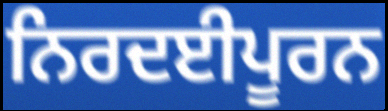
ਨਿਰਦਈਪੂਰਨ